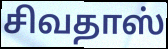
சிவதாஸ்